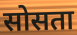
सोसता